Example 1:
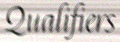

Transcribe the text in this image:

Qualifiers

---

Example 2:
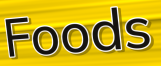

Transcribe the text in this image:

Foods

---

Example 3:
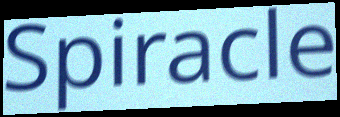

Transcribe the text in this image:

Spiracle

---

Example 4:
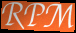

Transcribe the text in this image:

RPM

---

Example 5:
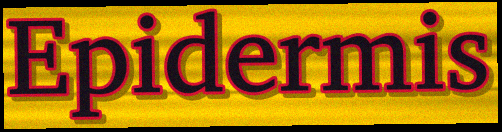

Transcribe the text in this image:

Epidermis